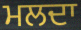
ਮਲਦਾ